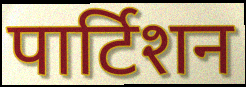
पार्टिशन